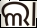
ଲା